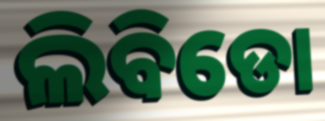
ଲିବିଡୋ